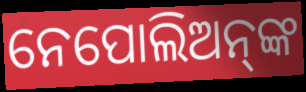
ନେପୋଲିଅନ୍‌ଙ୍କ